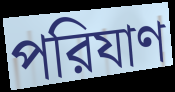
পরিযাণ